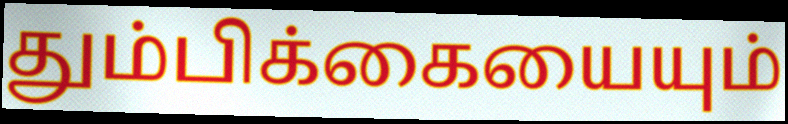
தும்பிக்கையையும்